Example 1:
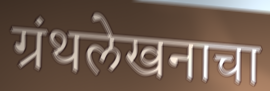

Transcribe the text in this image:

ग्रंथलेखनाचा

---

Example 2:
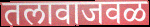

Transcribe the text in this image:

तलावाजवळ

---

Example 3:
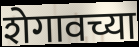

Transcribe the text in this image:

शेगावच्या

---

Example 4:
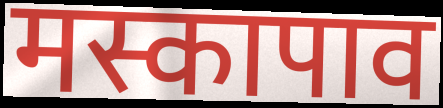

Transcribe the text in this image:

मस्कापाव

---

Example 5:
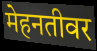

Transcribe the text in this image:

मेहनतीवर